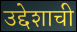
उद्देशाची